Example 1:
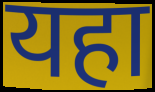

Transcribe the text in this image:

यहा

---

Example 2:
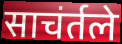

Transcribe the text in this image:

साचंर्तले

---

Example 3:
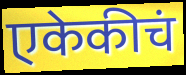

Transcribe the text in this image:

एकेकीचं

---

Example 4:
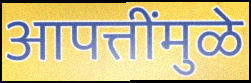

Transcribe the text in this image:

आपत्तींमुळे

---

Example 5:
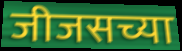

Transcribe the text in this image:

जीजसच्या